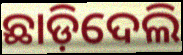
ଛାଡ଼ିଦେଲି